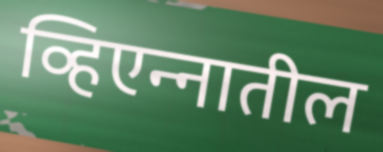
व्हिएन्नातील